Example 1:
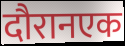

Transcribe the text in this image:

दौरानएक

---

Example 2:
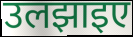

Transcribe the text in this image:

उलझाइए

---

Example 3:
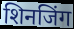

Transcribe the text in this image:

शिनजिंग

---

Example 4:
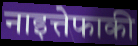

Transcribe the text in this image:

नाइत्तेफाकी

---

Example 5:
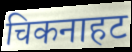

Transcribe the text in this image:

चिकनाहट